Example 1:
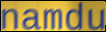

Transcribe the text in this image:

namdu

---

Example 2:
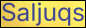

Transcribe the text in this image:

Saljuqs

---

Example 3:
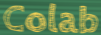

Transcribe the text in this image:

Colab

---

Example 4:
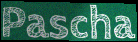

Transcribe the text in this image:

Pascha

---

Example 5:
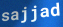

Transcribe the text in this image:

sajjad